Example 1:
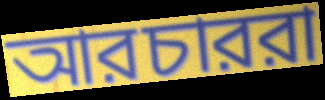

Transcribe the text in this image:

আরচাররা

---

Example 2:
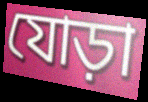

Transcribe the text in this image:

যোড়া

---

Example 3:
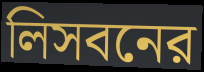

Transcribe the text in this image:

লিসবনের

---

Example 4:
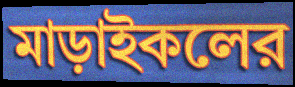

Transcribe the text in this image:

মাড়াইকলের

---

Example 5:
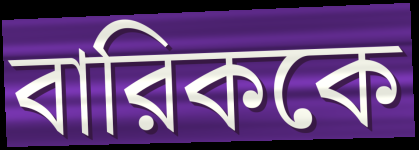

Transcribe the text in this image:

বারিককে